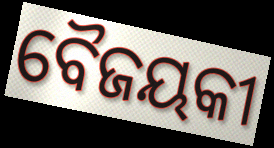
ବୈଜୟକୀ